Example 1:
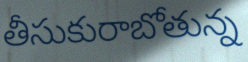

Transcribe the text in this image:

తీసుకురాబోతున్న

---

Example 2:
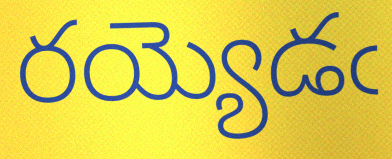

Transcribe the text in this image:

రయ్యెడఁ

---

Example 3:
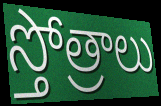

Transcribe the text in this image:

స్తోత్రాలు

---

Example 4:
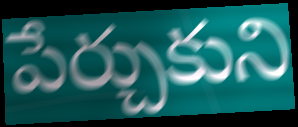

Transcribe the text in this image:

పేర్చుకుని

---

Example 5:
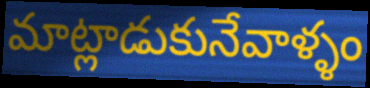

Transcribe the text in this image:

మాట్లాడుకునేవాళ్ళం